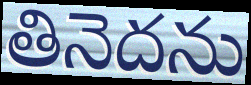
తినెదను